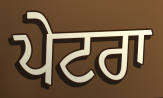
ਪੇਟਰਾ